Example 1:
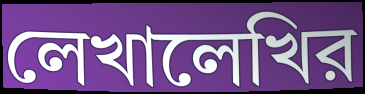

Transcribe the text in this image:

লেখালেখির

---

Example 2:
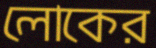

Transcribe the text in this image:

লোকের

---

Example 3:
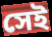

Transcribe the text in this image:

সেই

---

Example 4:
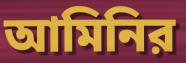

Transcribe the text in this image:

আমিনির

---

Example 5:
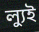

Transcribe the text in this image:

ল্যুই